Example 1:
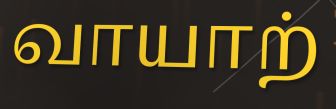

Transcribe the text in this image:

வாயாற்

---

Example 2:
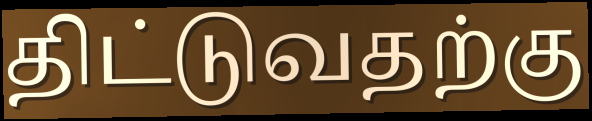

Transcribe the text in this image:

திட்டுவதற்கு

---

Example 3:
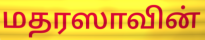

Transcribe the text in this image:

மதரஸாவின்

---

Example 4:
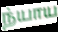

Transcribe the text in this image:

ந்யாய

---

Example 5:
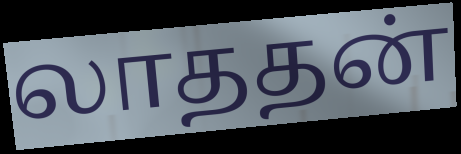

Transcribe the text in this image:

லாததன்